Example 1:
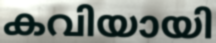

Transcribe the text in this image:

കവിയായി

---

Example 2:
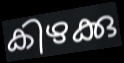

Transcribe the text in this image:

കിഴക്കു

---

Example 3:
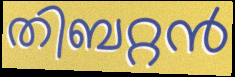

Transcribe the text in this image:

തിബറ്റൻ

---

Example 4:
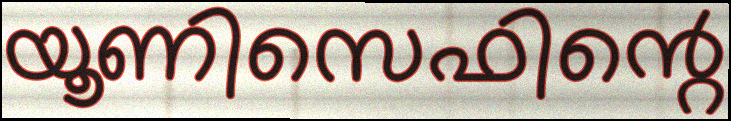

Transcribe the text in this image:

യൂണിസെഫിന്റെ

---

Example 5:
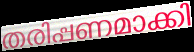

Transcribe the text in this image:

തരിപ്പണമാക്കി